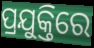
ପ୍ରଯୁକ୍ତିରେ